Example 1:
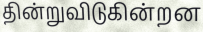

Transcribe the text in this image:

தின்றுவிடுகின்றன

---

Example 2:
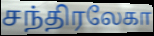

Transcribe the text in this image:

சந்திரலேகா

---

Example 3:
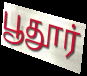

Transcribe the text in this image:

பூதூர்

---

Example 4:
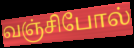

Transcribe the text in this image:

வஞ்சிபோல்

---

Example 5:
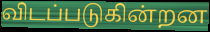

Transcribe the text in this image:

விடப்படுகின்றன